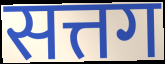
सत्तग